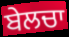
ਬੇਲਚਾ